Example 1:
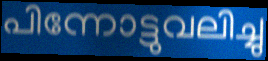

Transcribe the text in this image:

പിന്നോട്ടുവലിച്ചു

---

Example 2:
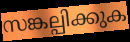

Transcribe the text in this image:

സങ്കല്പിക്കുക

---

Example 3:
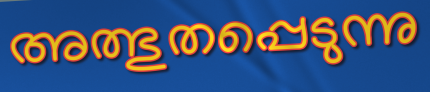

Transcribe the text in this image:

അത്ഭുതപ്പെടുന്നു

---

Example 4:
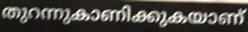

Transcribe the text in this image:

തുറന്നുകാണിക്കുകയാണ്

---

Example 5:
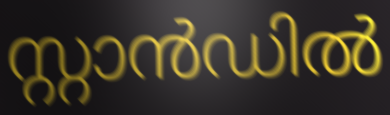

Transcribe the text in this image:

സ്റ്റാൻഡിൽ